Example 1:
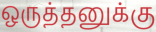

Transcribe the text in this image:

ஒருத்தனுக்கு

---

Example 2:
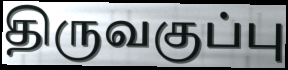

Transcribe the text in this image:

திருவகுப்பு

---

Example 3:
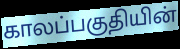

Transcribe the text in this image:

காலப்பகுதியின்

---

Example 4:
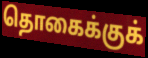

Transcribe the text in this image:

தொகைக்குக்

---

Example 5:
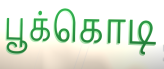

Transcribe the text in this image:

பூக்கொடி